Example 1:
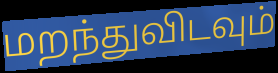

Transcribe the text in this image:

மறந்துவிடவும்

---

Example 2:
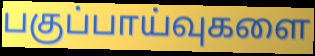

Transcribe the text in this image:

பகுப்பாய்வுகளை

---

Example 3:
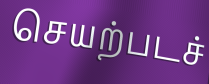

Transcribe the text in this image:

செயற்படச்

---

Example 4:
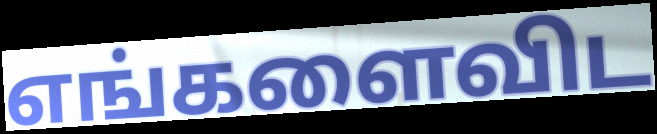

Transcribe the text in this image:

எங்களைவிட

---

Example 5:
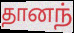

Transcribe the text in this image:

தானந்